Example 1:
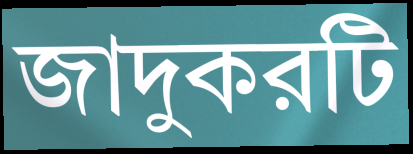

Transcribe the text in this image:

জাদুকরটি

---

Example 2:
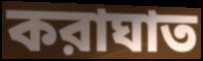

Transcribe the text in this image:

করাঘাত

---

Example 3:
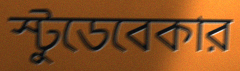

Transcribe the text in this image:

স্টুডেবেকার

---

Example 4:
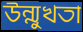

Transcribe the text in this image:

উন্মুখতা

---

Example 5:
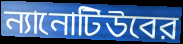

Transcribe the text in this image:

ন্যানোটিউবের